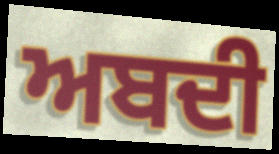
ਅਬਦੀ